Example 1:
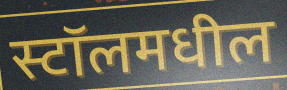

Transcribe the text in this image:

स्टॉलमधील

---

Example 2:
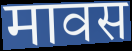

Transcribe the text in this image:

मावस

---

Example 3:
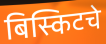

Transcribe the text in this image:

बिस्किटचे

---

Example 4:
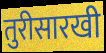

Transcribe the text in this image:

तुरीसारखी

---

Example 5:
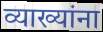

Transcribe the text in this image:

व्याख्यांना